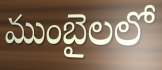
ముంబైలలో